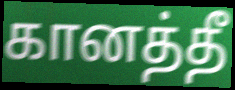
கானத்தீ